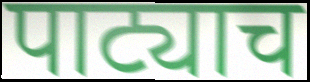
पाट्याच